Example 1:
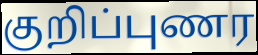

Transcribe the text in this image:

குறிப்புணர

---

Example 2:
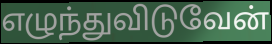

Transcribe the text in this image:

எழுந்துவிடுவேன்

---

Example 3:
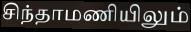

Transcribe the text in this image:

சிந்தாமணியிலும்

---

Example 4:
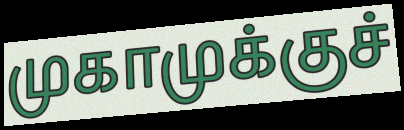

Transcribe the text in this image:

முகாமுக்குச்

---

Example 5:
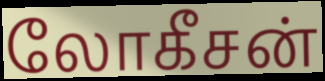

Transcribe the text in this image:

லோகீசன்